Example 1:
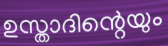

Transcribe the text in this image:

ഉസ്താദിന്റെയും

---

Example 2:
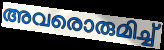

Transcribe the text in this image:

അവരൊരുമിച്ച്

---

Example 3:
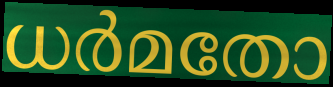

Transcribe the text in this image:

ധർമതോ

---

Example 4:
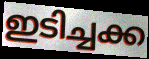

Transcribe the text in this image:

ഇടിച്ചക്ക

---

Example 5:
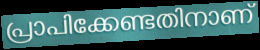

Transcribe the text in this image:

പ്രാപിക്കേണ്ടതിനാണ്